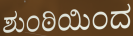
ಶುಂಠಿಯಿಂದ